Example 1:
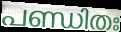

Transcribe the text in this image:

പണ്ഡിതഃ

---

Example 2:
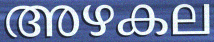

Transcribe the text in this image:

അഴകല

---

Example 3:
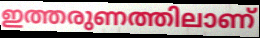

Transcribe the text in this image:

ഇത്തരുണത്തിലാണ്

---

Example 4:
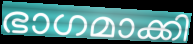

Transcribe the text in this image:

ഭാഗമാക്കി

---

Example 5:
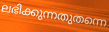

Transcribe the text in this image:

ലഭിക്കുന്നതുതന്നെ